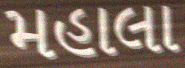
મહાલા